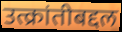
उत्क्रांतीबद्दल